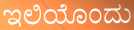
ಇಲಿಯೊಂದು